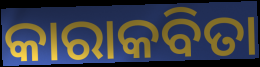
କାରାକବିତା